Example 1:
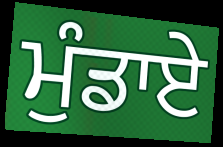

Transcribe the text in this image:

ਮੁੰਡਾਏ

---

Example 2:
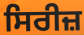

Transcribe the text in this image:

ਸਿਰੀਜ਼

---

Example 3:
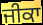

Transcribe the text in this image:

ਜੀਕਾ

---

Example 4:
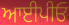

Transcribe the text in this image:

ਆਈਪੀਓ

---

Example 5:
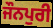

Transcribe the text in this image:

ਜੌਨਪੁਰੀ